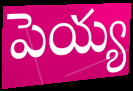
పెయ్య